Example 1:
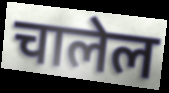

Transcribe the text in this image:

चालेल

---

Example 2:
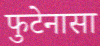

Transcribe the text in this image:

फुटेनासा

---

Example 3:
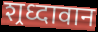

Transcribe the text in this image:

श्रध्दावान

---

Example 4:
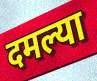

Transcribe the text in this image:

दमल्या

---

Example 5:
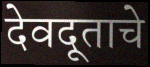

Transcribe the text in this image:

देवदूताचे